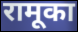
रामूका